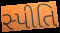
સ્પીતિ